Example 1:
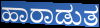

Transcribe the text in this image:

ಹಾರಾಡುತ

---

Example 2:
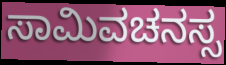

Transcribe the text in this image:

ಸಾಮಿವಚನಸ್ಸ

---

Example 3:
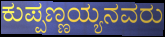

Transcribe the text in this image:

ಕುಪ್ಪಣ್ಣಯ್ಯನವರು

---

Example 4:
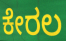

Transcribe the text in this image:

ಕೇರಲ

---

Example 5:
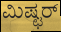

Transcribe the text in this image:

ಮಿಷ್ಟರ್